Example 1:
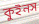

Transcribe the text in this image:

কুইনস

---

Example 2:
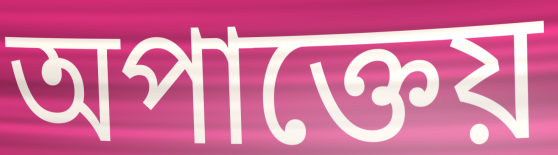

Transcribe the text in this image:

অপাক্তেয়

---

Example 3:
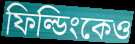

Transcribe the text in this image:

ফিল্ডিংকেও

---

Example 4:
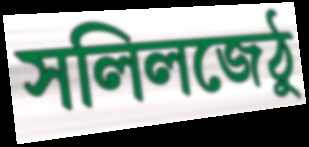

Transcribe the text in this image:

সলিলজেঠু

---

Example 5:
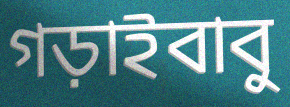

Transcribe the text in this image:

গড়াইবাবু